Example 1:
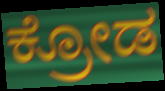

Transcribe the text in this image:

ಕ್ರೋಡ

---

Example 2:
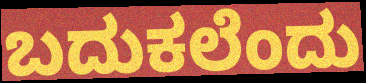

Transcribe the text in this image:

ಬದುಕಲೆಂದು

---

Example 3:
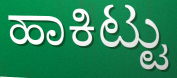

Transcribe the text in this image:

ಹಾಕಿಟ್ಟು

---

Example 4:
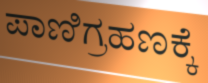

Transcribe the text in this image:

ಪಾಣಿಗ್ರಹಣಕ್ಕೆ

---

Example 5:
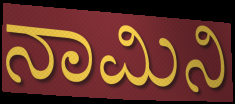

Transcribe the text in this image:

ನಾಮಿನಿ